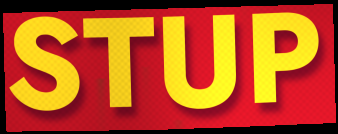
STUP